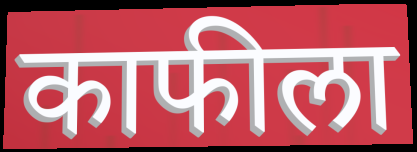
काफीला